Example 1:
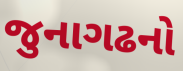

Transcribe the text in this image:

જુનાગઢનો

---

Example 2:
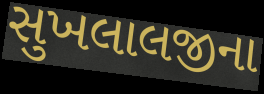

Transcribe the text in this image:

સુખલાલજીના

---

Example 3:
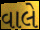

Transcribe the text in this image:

વાલે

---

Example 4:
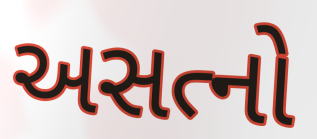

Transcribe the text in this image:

અસત્નો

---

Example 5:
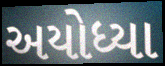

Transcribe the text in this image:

અયોધ્યા